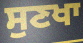
ਸੁਣਖਾ